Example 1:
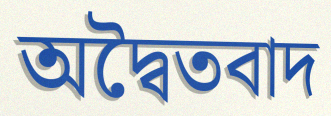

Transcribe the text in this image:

অদ্বৈতবাদ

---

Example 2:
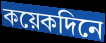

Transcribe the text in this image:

কয়েকদিনে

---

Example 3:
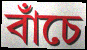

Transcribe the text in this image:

বাঁচে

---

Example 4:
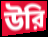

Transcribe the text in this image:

উরি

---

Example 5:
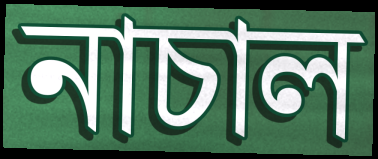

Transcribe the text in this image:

নাচাল